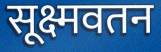
सूक्ष्मवतन